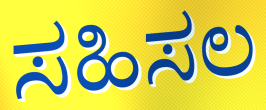
ಸಹಿಸಲ